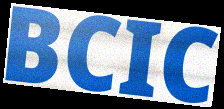
BCIC